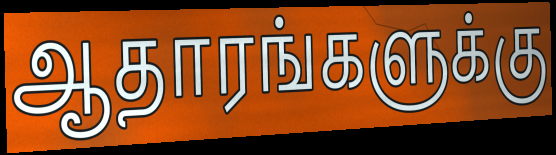
ஆதாரங்களுக்கு